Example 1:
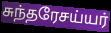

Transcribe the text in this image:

சுந்தரேசய்யர்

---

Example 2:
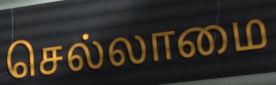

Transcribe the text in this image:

செல்லாமை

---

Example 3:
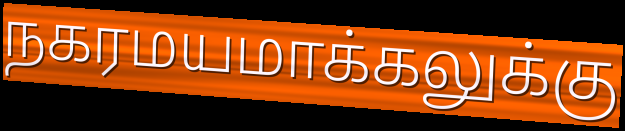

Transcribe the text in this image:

நகரமயமாக்கலுக்கு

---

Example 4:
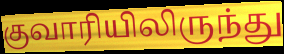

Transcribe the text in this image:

குவாரியிலிருந்து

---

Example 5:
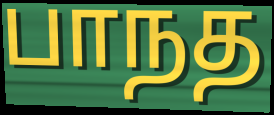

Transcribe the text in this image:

பாநத